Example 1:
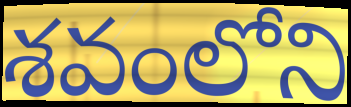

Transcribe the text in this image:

శవంలోని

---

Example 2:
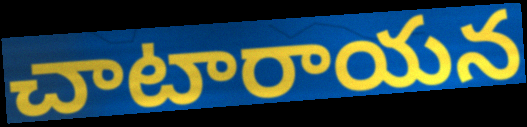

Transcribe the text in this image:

చాటారాయన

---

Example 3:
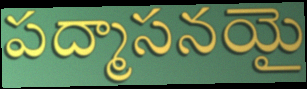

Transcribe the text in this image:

పద్మాసనయై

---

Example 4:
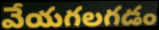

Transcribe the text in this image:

వేయగలగడం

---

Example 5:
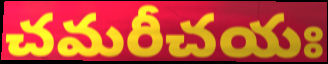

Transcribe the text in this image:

చమరీచయః